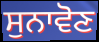
ਸੁਨਾਵੋਣ